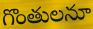
గొంతులనూ